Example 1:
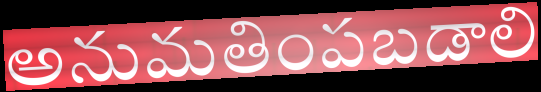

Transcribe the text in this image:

అనుమతింపబడాలి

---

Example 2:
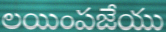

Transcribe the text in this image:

లయింపజేయు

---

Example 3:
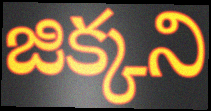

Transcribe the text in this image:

జిక్కని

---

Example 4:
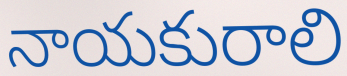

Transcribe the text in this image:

నాయకురాలి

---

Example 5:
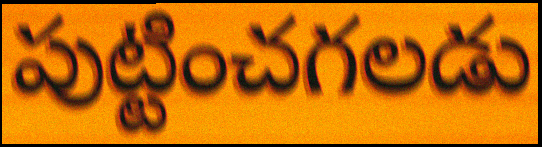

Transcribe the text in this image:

పుట్టించగలడు